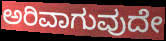
ಅರಿವಾಗುವುದೇ